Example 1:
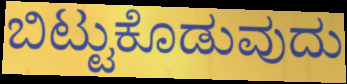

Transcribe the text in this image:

ಬಿಟ್ಟುಕೊಡುವುದು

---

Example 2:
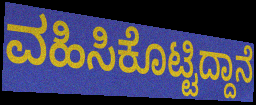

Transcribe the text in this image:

ವಹಿಸಿಕೊಟ್ಟಿದ್ದಾನೆ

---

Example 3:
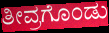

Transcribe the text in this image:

ತೀವ್ರಗೊಂಡು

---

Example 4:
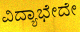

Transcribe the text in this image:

ವಿದ್ಯಾಭೇದೇ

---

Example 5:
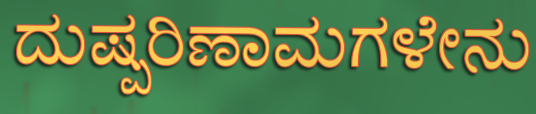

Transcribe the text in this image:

ದುಷ್ಪರಿಣಾಮಗಳೇನು